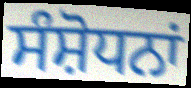
ਸੰਸ਼ੋਧਨਾਂ